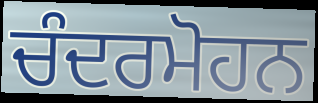
ਚੰਦਰਮੋਹਨ